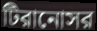
টিরানোসর